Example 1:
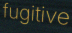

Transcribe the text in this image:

fugitive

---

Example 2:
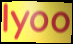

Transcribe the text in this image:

lyoo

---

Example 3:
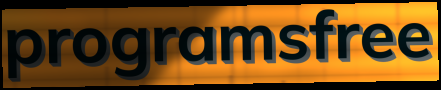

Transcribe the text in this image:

programsfree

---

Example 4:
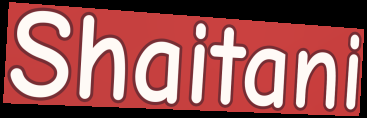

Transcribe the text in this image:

Shaitani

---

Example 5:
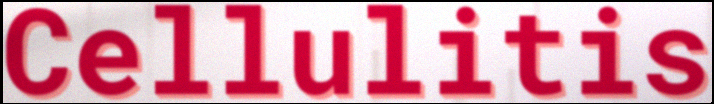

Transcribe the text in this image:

Cellulitis